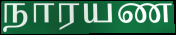
நாரயண